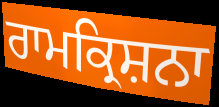
ਰਾਮਕ੍ਰਿਸ਼ਨਾ